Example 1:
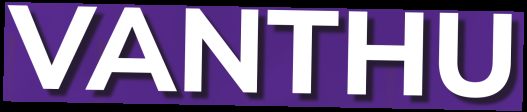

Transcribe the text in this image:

VANTHU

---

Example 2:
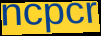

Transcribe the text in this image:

ncpcr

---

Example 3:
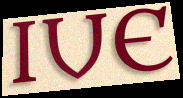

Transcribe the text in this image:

IUE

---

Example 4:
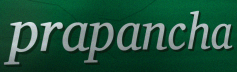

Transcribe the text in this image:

prapancha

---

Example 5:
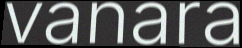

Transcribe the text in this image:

vanara